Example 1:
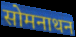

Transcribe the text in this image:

सोमनाथन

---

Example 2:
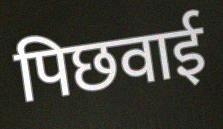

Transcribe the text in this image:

पिछवाई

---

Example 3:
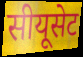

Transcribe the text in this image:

सीयूसेट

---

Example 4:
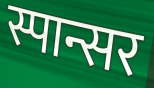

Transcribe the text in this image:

स्पान्सर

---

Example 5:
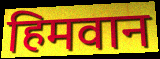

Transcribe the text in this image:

हिमवान